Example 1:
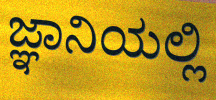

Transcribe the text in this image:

ಜ್ಞಾನಿಯಲ್ಲಿ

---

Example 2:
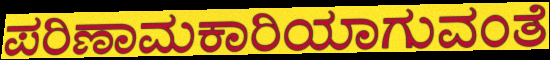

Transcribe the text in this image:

ಪರಿಣಾಮಕಾರಿಯಾಗುವಂತೆ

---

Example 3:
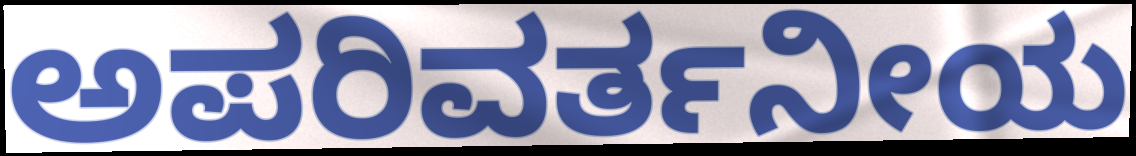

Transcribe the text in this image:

ಅಪರಿವರ್ತನೀಯ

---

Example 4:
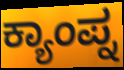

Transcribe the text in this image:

ಕ್ಯಾಂಪ್ನ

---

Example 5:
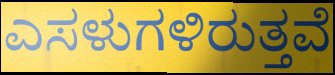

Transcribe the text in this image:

ಎಸಳುಗಳಿರುತ್ತವೆ